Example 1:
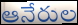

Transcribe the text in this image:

ఆనేరుల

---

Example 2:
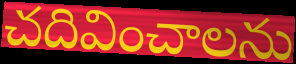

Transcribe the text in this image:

చదివించాలను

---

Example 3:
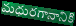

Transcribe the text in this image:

మధురగానానికి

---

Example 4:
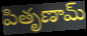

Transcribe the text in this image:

పితృణామ్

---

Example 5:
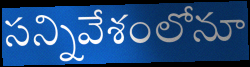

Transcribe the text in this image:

సన్నివేశంలోనూ